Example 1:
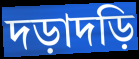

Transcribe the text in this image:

দড়াদড়ি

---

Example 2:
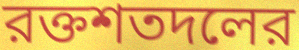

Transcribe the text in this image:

রক্তশতদলের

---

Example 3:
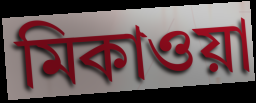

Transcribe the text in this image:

মিকাওয়া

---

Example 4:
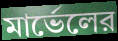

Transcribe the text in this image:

মার্ভেলের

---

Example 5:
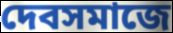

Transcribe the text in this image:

দেবসমাজে